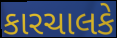
કારચાલકે